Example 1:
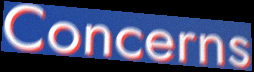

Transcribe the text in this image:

Concerns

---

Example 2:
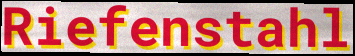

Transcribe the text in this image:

Riefenstahl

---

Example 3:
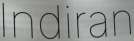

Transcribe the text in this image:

Indiran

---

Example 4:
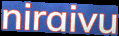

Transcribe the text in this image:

niraivu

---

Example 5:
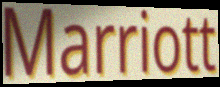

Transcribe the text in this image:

Marriott